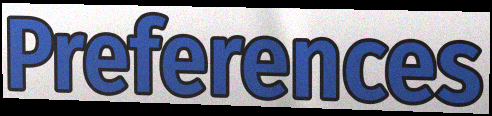
Preferences